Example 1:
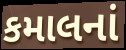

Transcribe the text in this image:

કમાલનાં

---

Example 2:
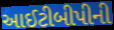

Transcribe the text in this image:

આઈટીબીપીની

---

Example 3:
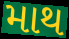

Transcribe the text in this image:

માથ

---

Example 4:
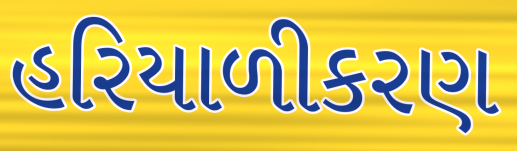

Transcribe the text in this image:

હરિયાળીકરણ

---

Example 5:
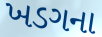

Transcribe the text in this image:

ખડગના